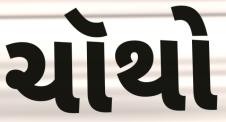
ચૉથો